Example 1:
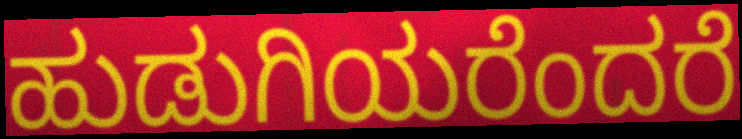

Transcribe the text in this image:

ಹುಡುಗಿಯರೆಂದರೆ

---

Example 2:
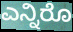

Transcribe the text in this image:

ಎನ್ನಿರೊ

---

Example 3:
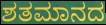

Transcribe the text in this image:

ಶತಮಾನದ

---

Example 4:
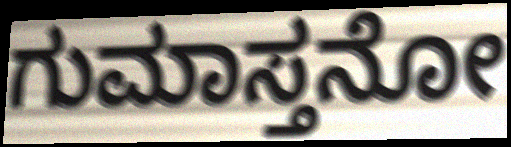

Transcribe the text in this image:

ಗುಮಾಸ್ತನೋ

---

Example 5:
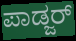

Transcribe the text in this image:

ಪಾಡ್ಜರ್